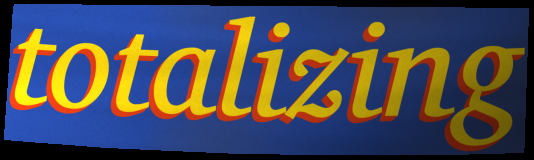
totalizing